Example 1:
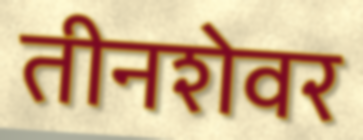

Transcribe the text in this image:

तीनशेवर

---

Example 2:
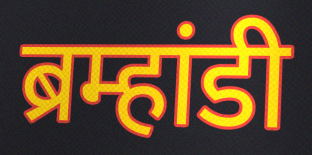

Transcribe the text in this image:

ब्रम्हांडी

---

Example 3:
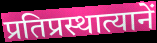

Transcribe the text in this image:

प्रतिप्रस्थात्यानें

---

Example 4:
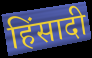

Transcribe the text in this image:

हिंसादी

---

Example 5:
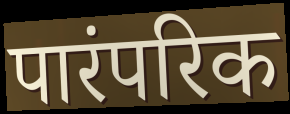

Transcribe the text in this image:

पारंपरिक